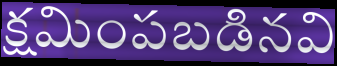
క్షమింపబడినవి